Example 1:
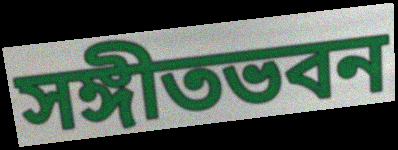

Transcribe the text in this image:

সঙ্গীতভবন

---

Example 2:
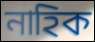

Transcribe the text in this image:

নাহিক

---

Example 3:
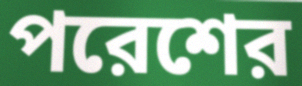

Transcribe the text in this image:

পরেশের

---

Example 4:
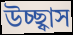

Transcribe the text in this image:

উচ্ছ্বাস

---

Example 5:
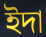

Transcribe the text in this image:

ইদা